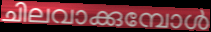
ചിലവാക്കുമ്പോൾ